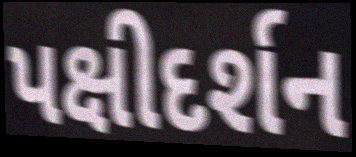
પક્ષીદર્શન